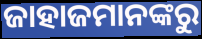
ଜାହାଜମାନଙ୍କରୁ